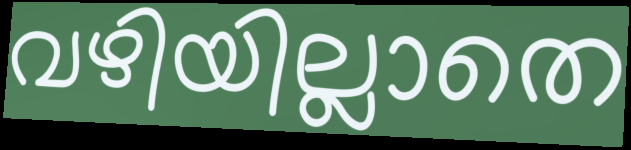
വഴിയില്ലാതെ